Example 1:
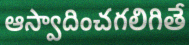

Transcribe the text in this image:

ఆస్వాదించగలిగితే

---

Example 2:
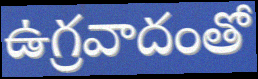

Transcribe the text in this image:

ఉగ్రవాదంతో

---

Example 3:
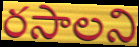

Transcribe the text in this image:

రసాలని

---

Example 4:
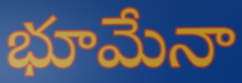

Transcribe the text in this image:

భూమేనా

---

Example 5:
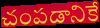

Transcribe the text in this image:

చంపడానికే